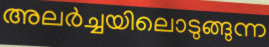
അലർച്ചയിലൊടുങ്ങുന്ന